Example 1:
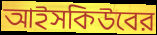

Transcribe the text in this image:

আইসকিউবের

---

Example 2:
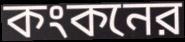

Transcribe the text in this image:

কংকনের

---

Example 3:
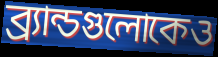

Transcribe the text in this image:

ব্র্যান্ডগুলোকেও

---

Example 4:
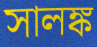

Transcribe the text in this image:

সালঙ্ক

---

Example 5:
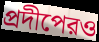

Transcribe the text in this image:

প্রদীপেরও